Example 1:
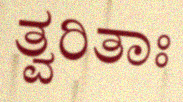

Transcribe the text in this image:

ತ್ವರಿತಾಃ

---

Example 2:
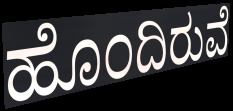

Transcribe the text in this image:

ಹೊಂದಿರುವೆ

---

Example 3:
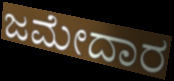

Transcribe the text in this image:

ಜಮೇದಾರ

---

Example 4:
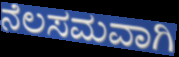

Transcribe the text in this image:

ನೆಲಸಮವಾಗಿ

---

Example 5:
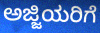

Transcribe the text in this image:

ಅಜ್ಜಿಯರಿಗೆ